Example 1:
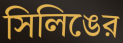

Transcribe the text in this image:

সিলিঙের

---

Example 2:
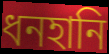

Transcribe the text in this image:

ধনহানি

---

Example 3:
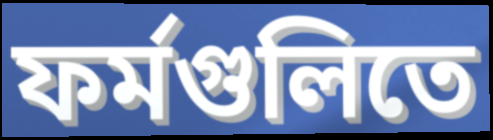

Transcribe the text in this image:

ফর্মগুলিতে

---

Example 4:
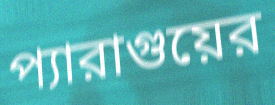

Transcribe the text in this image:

প্যারাগুয়ের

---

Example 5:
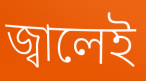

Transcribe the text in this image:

জ্বালেই